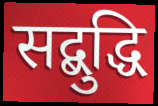
सद्बुद्धि